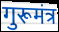
गुरूमंत्र